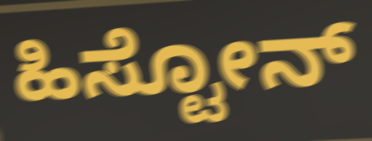
ಹಿಸ್ಟೋನ್